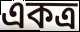
একত্ৰ